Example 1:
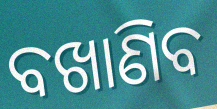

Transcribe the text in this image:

ବଖାଣିବ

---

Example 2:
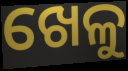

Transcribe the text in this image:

ଖେଳୁ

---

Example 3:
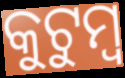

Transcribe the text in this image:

କୁଟୁମ୍ୱ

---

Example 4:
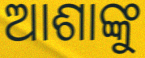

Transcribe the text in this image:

ଆଶାଙ୍କୁ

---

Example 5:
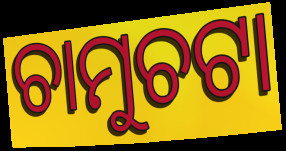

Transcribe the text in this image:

ଚାମୁଚଟା